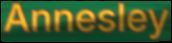
Annesley